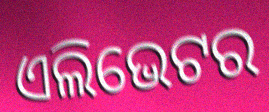
ଏଲିଭେଟର